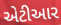
એટીઆર